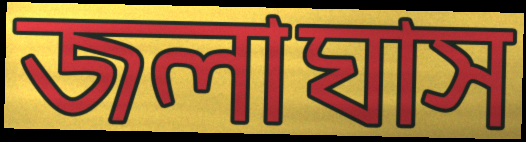
জলাঘাস